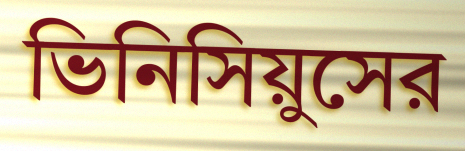
ভিনিসিয়ুসের